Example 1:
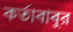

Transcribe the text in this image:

কর্তাবাবুর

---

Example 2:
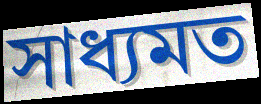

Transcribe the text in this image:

সাধ্যমত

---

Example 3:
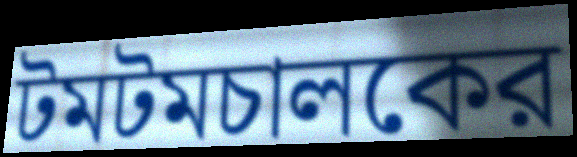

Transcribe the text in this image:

টমটমচালকের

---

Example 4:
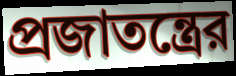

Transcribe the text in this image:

প্রজাতন্ত্রের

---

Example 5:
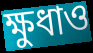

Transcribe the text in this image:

ক্ষুধাও